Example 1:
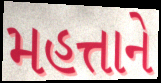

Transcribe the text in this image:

મહત્તાને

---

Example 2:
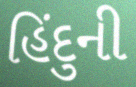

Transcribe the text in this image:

હિંદુની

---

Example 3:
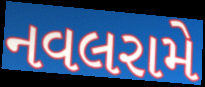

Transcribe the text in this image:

નવલરામે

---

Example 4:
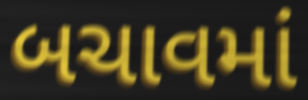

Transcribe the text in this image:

બચાવમાં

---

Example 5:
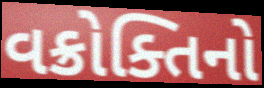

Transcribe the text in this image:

વક્રોક્તિનો